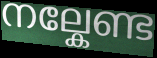
നല്കേണ്ട